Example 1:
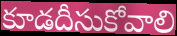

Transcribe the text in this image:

కూడదీసుకోవాలి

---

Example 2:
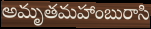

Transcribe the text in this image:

అమృతమహాంబురాసి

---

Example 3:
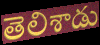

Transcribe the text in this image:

తెలిశాడు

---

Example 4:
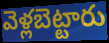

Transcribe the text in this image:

వెళ్లబెట్టారు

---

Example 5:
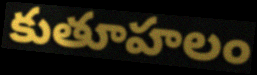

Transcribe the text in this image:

కుతూహలం